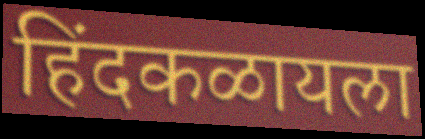
हिंदकळायला